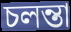
চলন্তা